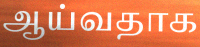
ஆய்வதாக